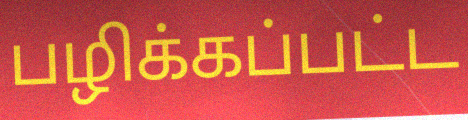
பழிக்கப்பட்ட